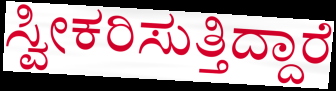
ಸ್ವೀಕರಿಸುತ್ತಿದ್ದಾರೆ